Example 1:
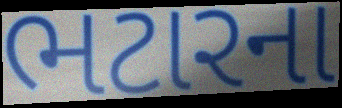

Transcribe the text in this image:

ભટારના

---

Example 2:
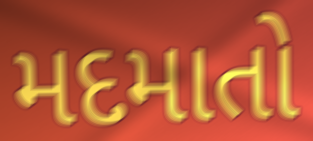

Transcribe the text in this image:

મદમાતો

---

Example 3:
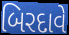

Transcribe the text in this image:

બિરદાવે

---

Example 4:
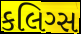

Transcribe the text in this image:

કલિગ્સ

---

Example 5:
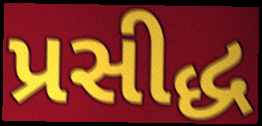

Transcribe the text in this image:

પ્રસીદ્ધ